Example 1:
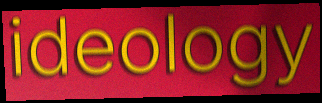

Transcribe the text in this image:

ideology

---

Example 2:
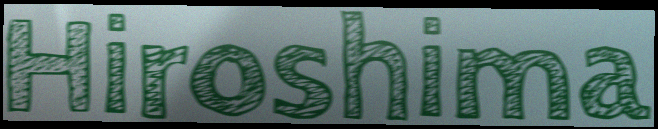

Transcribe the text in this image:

Hiroshima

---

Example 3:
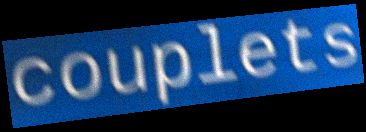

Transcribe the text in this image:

couplets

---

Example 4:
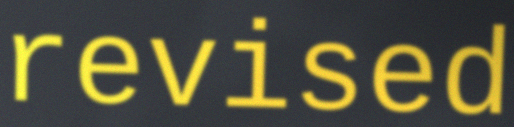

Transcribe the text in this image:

revised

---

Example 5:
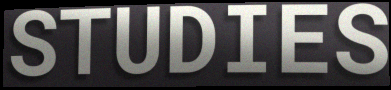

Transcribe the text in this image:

STUDIES